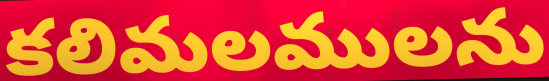
కలిమలములను